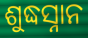
ଶୁଦ୍ଧସ୍ନାନ